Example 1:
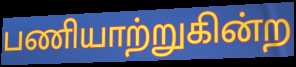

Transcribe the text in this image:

பணியாற்றுகின்ற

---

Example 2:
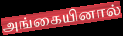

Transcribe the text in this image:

அங்கையினால்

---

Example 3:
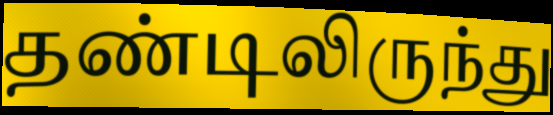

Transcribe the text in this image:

தண்டிலிருந்து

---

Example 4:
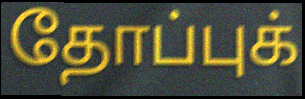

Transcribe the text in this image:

தோப்புக்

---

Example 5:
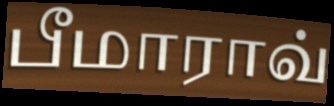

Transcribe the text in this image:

பீமாராவ்